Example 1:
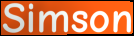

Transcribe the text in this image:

Simson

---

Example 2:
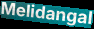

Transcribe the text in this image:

Melidangal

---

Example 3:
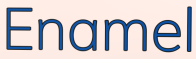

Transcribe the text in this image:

Enamel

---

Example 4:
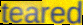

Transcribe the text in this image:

teared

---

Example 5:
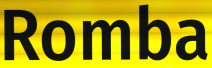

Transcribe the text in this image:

Romba